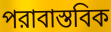
পরাবাস্তবিক